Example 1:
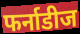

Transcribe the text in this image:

फर्नाडीज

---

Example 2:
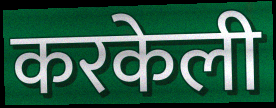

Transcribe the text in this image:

करकेली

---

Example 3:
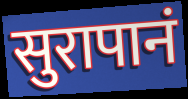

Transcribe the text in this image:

सुरापानं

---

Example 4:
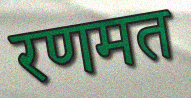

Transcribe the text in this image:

रणमत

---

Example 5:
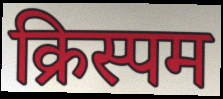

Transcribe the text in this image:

क्रिस्पम